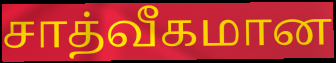
சாத்வீகமான